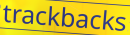
trackbacks